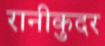
रानीकुदर